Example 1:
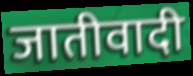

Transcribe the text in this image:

जातीवादी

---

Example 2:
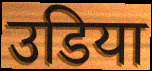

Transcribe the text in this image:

उडिया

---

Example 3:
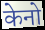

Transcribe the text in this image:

केनो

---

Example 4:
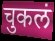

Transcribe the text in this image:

चुकलं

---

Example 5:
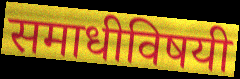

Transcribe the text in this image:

समाधीविषयी